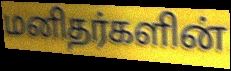
மனிதர்களின்